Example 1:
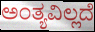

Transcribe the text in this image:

ಅಂತ್ಯವಿಲ್ಲದೆ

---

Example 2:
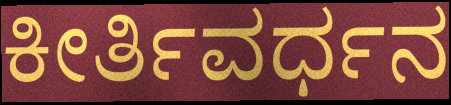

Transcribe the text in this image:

ಕೀರ್ತಿವರ್ಧನ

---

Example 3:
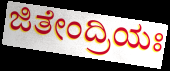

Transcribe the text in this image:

ಜಿತೇಂದ್ರಿಯಃ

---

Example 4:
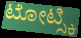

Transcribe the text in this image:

ಟೋಟ್ಸ್ಕಿ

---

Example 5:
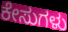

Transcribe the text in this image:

ಕೇಸುಗಳು